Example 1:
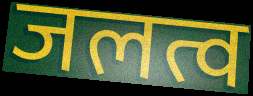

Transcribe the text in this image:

जलत्व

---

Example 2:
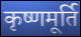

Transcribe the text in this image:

कृष्णमूर्ति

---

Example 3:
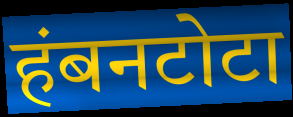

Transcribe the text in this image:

हंबनटोटा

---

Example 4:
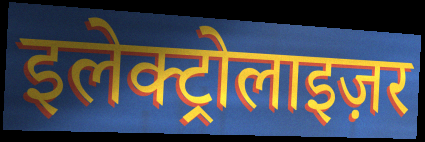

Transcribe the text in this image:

इलेक्ट्रोलाइज़र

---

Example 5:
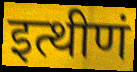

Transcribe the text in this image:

इत्थीणं